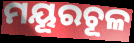
ମୟୂରଚୂଳ